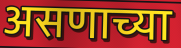
असणाच्या